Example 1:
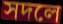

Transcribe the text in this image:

সদলে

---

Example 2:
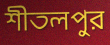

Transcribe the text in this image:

শীতলপুর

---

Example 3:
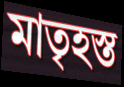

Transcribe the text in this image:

মাতৃহস্ত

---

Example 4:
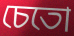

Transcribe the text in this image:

চেতো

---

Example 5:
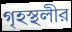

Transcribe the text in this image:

গৃহস্থলীর